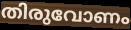
തിരുവോണം